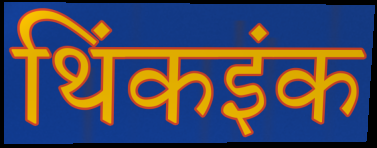
थिंकइंक